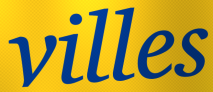
villes